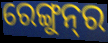
ରେଙ୍ଗୁନ୍‌ର